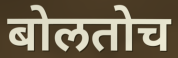
बोलतोच